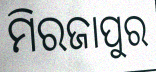
ମିରଜାପୁର